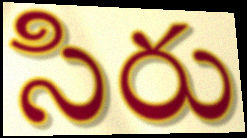
సిరు